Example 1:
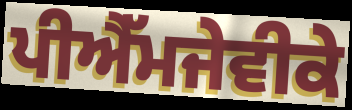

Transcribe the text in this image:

ਪੀਐੱਮਜੇਵੀਕੇ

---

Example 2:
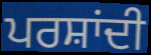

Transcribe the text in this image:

ਪਰਸ਼ਾਂਦੀ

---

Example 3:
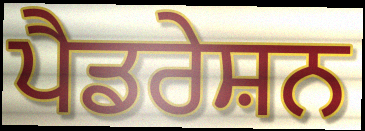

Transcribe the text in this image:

ਪੈਡਰੇਸ਼ਨ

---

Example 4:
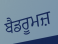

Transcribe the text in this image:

ਬੈਡਰੂਮਜ਼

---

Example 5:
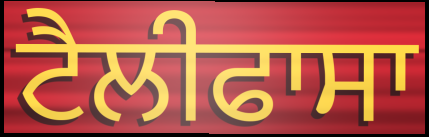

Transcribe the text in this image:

ਟੈਲੀਫਾਸਾ